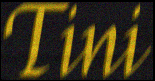
Tini